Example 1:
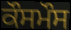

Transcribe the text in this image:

ਕੌਸਮੌਸ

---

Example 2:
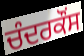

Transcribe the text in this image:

ਚੰਦਰਕੌਂਸ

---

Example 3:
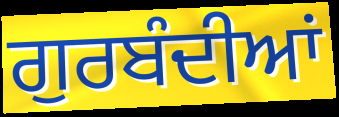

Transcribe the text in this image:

ਗੁਰਬੰਦੀਆਂ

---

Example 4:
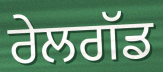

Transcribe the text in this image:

ਰੇਲਗੱਡ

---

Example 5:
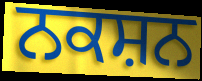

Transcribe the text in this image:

ਨਕਸ਼ਨ